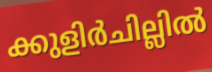
ക്കുളിർചില്ലിൽ